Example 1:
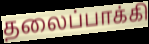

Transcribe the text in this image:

தலைப்பாக்கி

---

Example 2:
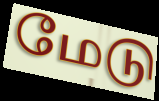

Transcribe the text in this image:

மேடு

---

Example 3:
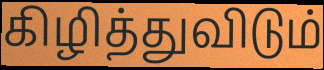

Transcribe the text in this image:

கிழித்துவிடும்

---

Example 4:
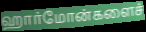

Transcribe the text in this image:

ஹார்மோன்களைச்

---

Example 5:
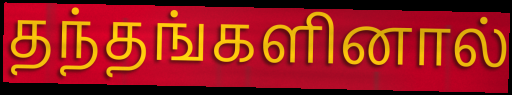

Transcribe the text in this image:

தந்தங்களினால்